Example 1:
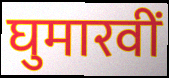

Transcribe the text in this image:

घुमारवीं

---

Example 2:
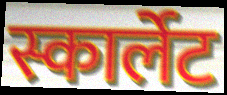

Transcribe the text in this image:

स्कार्लेट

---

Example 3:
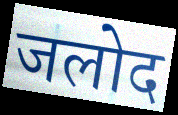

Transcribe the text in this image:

जलोद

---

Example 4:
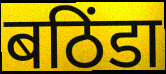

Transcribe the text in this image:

बठिंडा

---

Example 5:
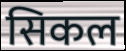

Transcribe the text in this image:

सिकल